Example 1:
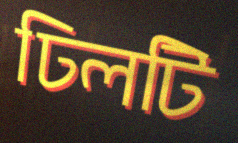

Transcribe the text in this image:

ঢিলটি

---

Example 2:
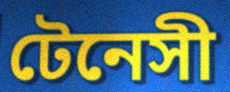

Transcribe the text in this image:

টেনেসী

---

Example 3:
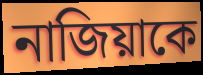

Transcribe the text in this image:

নাজিয়াকে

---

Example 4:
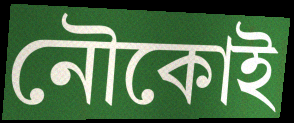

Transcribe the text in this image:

নৌকোই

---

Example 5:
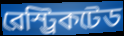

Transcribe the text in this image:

রেস্ট্রিকটেড